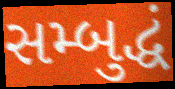
સમ્બુદ્ધં